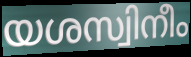
യശസ്വിനീം